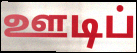
ஊடிப்